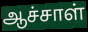
ஆச்சாள்